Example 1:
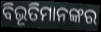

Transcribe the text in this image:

ବିଭୂତିମାନଙ୍କର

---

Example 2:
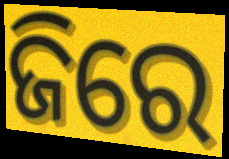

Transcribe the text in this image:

ଜିରେ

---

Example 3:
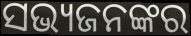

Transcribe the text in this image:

ସଭ୍ୟଜନଙ୍କର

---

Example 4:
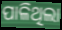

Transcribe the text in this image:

ପାଳିଥିଲା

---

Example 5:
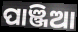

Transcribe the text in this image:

ପାଞ୍ଜିଆ